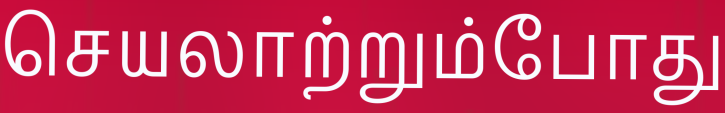
செயலாற்றும்போது